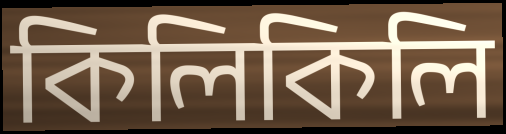
কিলিকিলি